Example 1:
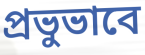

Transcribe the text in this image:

প্রভুভাবে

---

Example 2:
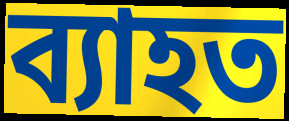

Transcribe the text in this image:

ব্যাহত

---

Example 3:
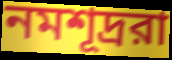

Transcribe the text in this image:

নমশূদ্ররা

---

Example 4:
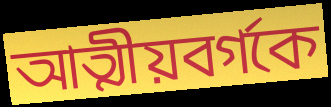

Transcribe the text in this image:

আত্মীয়বর্গকে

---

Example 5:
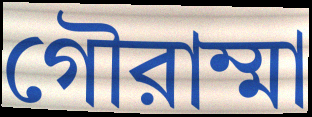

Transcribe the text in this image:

গৌরাম্মা